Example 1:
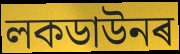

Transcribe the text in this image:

লকডাউনৰ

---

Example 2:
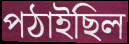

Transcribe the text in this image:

পঠাইছিল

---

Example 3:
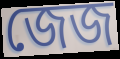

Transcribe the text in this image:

জেজ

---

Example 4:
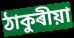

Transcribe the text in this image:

ঠাকুৰীয়া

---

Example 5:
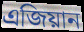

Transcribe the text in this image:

এজিয়ান